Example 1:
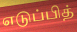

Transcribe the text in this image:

எடுப்பித்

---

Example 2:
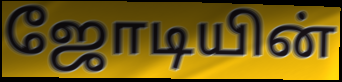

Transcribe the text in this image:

ஜோடியின்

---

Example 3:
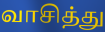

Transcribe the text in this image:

வாசித்து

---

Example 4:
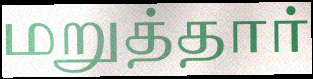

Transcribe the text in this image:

மறுத்தார்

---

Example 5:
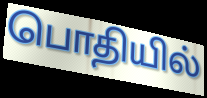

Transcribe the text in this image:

பொதியில்